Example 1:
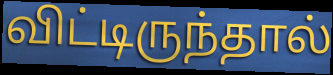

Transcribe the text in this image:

விட்டிருந்தால்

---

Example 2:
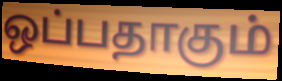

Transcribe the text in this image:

ஒப்பதாகும்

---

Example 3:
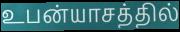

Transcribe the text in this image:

உபன்யாசத்தில்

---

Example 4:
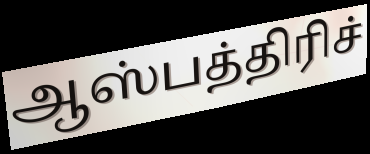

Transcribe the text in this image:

ஆஸ்பத்திரிச்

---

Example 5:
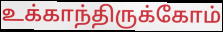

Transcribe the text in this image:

உக்காந்திருக்கோம்